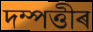
দম্পত্তীৰ